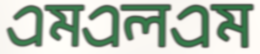
এমএলএম